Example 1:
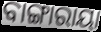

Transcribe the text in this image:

ବାଙ୍ଗାରାୟା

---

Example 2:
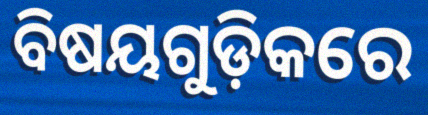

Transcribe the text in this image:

ବିଷୟଗୁଡ଼ିକରେ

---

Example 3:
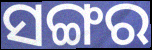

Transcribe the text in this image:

ସଙ୍ଗର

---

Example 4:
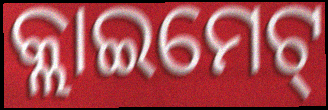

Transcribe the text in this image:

କ୍ଲାଇମେଟ୍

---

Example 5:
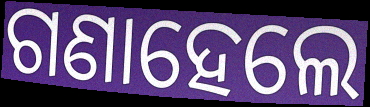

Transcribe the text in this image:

ଗଣାହେଲେ